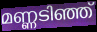
മണ്ണടിഞ്ഞ്